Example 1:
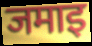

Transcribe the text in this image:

जमाइ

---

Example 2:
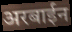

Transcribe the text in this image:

अरबाईन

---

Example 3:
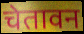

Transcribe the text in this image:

चेतावन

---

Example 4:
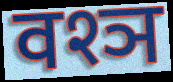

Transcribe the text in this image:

वश्ञ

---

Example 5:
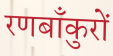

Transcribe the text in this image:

रणबाँकुरों